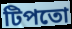
টিপতো